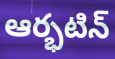
ఆర్భటిన్